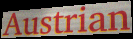
Austrian